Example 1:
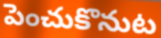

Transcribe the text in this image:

పెంచుకొనుట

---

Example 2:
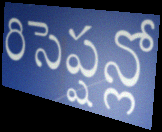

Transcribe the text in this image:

రిసెప్షన్లో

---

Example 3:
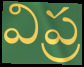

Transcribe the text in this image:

విప్ర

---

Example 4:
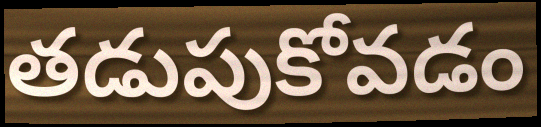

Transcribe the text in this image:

తడుపుకోవడం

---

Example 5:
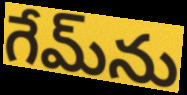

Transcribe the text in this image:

గేమ్‌ను